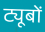
ट्यूबों